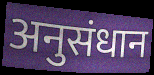
अनुसंधान